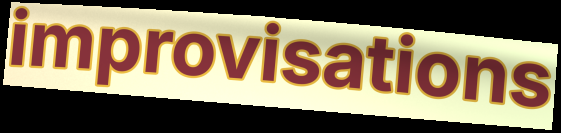
improvisations